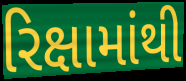
રિક્ષામાંથી